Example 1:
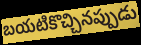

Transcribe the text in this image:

బయటికొచ్చినప్పుడు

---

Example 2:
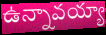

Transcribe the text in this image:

ఉన్నావయ్యా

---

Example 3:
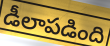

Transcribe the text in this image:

డీలాపడింది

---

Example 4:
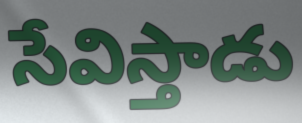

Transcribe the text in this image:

సేవిస్తాడు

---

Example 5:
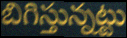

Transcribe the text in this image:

బిగిస్తున్నట్టు